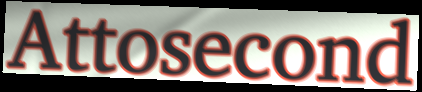
Attosecond